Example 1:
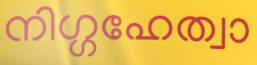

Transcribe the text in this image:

നിഗ്ഗഹേത്വാ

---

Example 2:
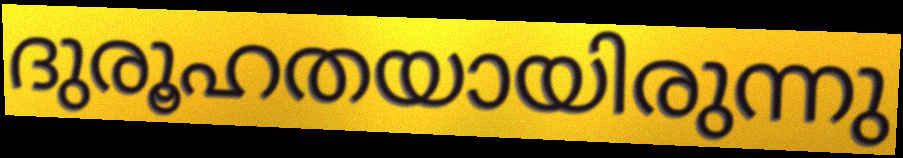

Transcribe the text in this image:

ദുരൂഹതയായിരുന്നു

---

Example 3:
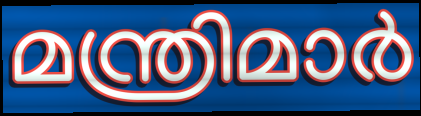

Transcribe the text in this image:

മന്ത്രിമാർ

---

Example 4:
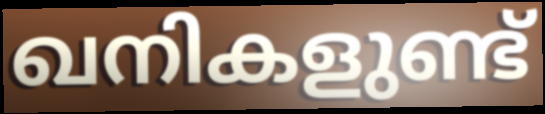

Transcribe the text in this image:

ഖനികളുണ്ട്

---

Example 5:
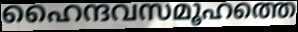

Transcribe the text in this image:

ഹൈന്ദവസമൂഹത്തെ